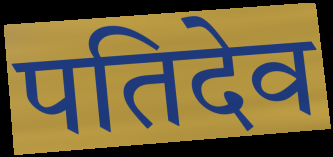
पतिदेव